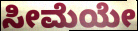
ಸೀಮೆಯೇ